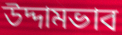
উদ্দামভাব